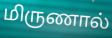
மிருணால்